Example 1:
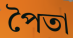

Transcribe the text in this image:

পৈতা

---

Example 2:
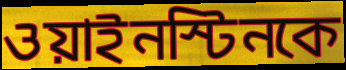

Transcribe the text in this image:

ওয়াইনস্টিনকে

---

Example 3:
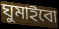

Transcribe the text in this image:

ঘুমাইবো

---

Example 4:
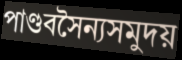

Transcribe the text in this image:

পাণ্ডবসৈন্যসমুদয়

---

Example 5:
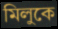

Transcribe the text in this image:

মিলুকে